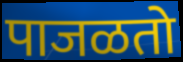
पाजळतो